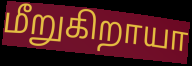
மீறுகிறாயா